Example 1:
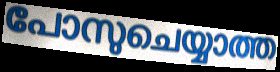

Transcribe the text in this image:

പോസുചെയ്യാത്ത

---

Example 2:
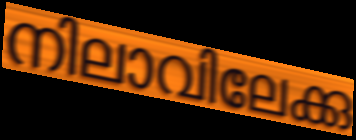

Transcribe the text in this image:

നിലാവിലേക്കു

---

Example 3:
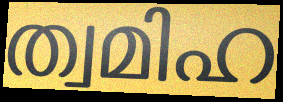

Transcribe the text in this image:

ത്വമിഹ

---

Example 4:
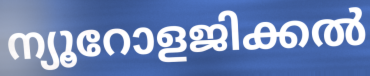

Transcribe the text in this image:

ന്യൂറോളജിക്കൽ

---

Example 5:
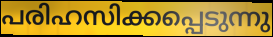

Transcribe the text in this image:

പരിഹസിക്കപ്പെടുന്നു